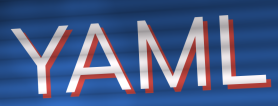
YAML